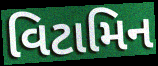
વિટામિન